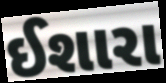
ઈશારા